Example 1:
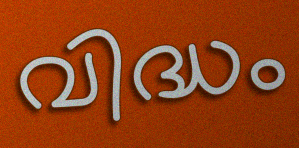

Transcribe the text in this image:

വിദ്ധം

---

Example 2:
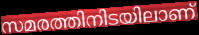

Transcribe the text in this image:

സമരത്തിനിടയിലാണ്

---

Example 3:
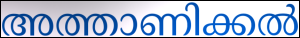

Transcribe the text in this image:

അത്താണിക്കൽ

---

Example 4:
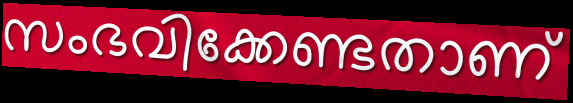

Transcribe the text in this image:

സംഭവിക്കേണ്ടതാണ്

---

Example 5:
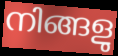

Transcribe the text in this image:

നിങ്ങളു